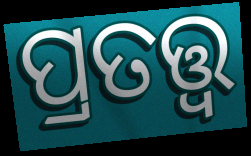
ପ୍ରତତ୍ତ୍ୱ